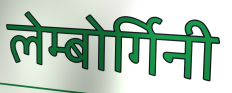
लेम्बोर्गिनी